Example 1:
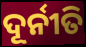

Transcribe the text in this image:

ଦୂର୍ନୀତି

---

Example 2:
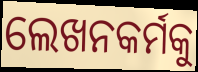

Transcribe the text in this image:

ଲେଖନକର୍ମକୁ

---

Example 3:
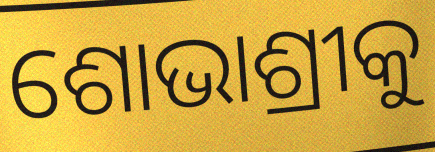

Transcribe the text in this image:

ଶୋଭାଶ୍ରୀକୁ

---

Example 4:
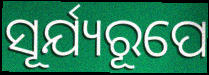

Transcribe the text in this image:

ସୂର୍ଯ୍ୟରୂପେ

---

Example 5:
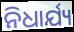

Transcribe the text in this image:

ନିଧାର୍ଯ୍ୟ